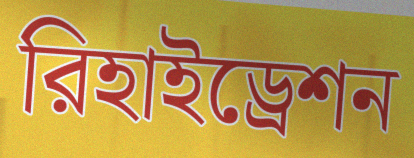
রিহাইড্রেশন